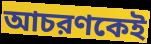
আচরণকেই